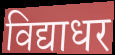
विद्याधर